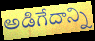
అడిగేదాన్ని